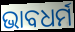
ଭାବଧର୍ମ